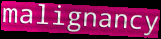
malignancy